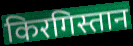
किरगिस्तान